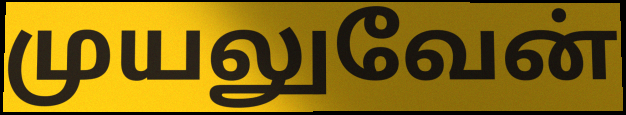
முயலுவேன்